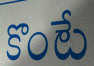
కొంటే